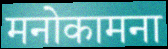
मनोकामना